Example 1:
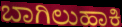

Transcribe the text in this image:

ಬಾಗಿಲುಹಾಕಿ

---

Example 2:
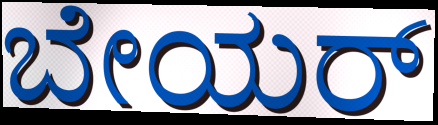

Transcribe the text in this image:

ಬೇಯರ್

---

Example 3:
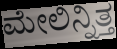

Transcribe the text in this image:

ಮೇಲಿನ್ನಿತ್ತ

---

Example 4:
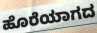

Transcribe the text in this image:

ಹೊರೆಯಾಗದ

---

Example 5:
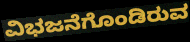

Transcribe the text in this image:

ವಿಭಜನೆಗೊಂಡಿರುವ